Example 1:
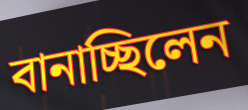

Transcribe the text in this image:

বানাচ্ছিলেন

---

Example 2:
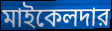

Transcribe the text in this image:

মাইকেলদার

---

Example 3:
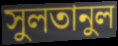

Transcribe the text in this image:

সুলতানুল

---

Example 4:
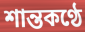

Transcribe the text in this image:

শান্তকণ্ঠে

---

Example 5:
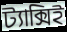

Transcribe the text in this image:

ট্যাক্সিই